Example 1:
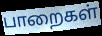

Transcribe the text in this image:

பாறைகள்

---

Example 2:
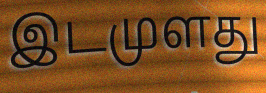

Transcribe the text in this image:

இடமுளது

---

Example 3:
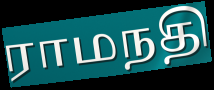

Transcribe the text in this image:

ராமநதி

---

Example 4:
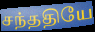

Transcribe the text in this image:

சந்ததியே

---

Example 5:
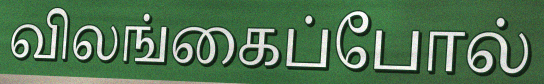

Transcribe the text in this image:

விலங்கைப்போல்